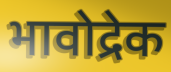
भावोद्रेक